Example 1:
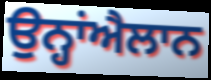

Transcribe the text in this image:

ਉਨ੍ਹਾਂਐਲਾਨ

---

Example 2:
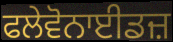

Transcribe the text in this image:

ਫਲੇਵੋਨਾਈਡਜ਼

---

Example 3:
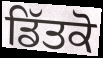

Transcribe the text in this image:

ਡਿੱਤਕੋ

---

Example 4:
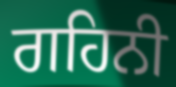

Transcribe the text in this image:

ਗਹਿਨੀ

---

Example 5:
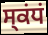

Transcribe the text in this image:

ਸ੍ਕਂਧਂ